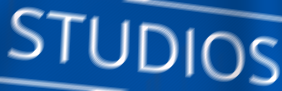
STUDIOS